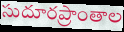
సుదూరప్రాంతాల